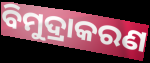
ବିମୁଦ୍ରାକରଣ